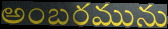
అంబరమును